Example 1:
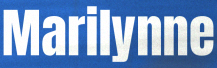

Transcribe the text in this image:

Marilynne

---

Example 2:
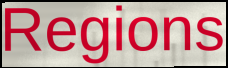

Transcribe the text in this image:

Regions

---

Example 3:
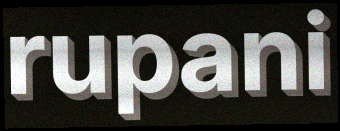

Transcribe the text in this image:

rupani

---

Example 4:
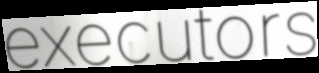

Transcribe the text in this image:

executors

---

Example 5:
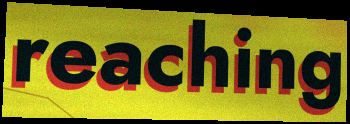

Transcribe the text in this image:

reaching